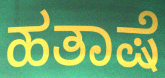
ಹತಾಷೆ